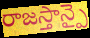
రాజస్తాన్పై